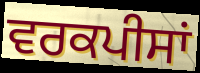
ਵਰਕਪੀਸਾਂ